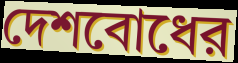
দেশবোধের